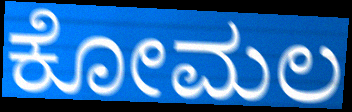
ಕೋಮಲ